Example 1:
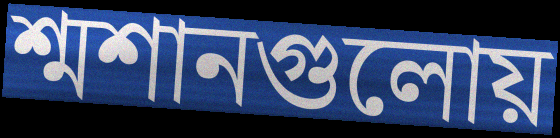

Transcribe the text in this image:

শ্মশানগুলোয়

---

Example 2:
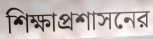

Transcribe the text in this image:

শিক্ষাপ্রশাসনের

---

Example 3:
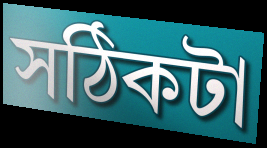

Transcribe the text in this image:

সঠিকটা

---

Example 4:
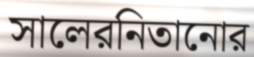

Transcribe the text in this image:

সালেরনিতানোর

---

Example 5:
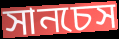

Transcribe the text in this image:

সানচেস